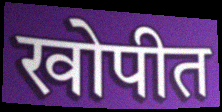
खोपीत